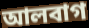
আলবাগ